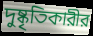
দুষ্কৃতিকারীর